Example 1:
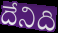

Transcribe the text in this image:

దేనిది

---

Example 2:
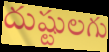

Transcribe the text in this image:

దుష్టులగు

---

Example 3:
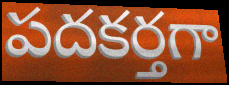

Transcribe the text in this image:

పదకర్తగా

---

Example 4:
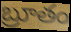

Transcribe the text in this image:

బ్రూతం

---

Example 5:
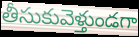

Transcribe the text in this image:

తీసుకువెళ్తుండగా